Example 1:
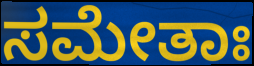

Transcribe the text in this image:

ಸಮೇತಾಃ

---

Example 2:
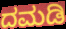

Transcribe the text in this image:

ದಮಡಿ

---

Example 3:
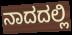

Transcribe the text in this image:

ನಾದದಲ್ಲಿ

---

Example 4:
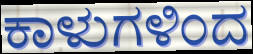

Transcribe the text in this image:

ಕಾಳುಗಳಿಂದ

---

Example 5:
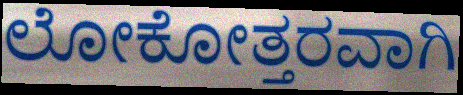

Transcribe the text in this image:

ಲೋಕೋತ್ತರವಾಗಿ